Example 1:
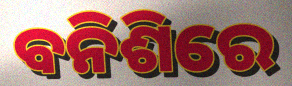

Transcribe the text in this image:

ବନିଶିରେ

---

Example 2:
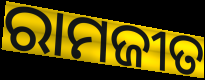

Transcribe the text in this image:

ରାମଜୀତ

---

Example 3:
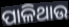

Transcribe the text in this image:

ପାଳିଥାଉ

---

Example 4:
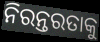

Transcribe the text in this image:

ନିରନ୍ତରତାକୁ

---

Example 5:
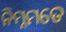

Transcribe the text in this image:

ନିମ୍ନମତେ